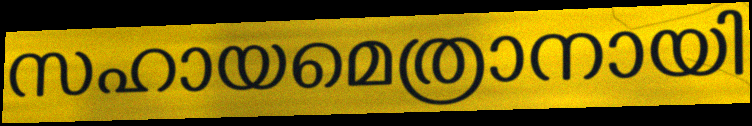
സഹായമെത്രാനായി